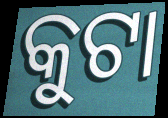
କୁଟା